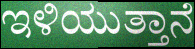
ಇಳಿಯುತ್ತಾನೆ